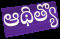
ఆథిత్యొ